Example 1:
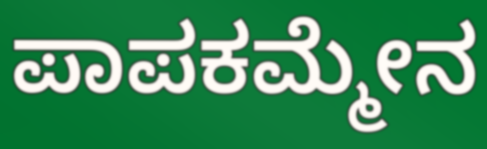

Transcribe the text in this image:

ಪಾಪಕಮ್ಮೇನ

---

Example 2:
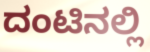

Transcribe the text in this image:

ದಂಟಿನಲ್ಲಿ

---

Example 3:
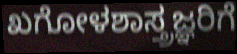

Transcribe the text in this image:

ಖಗೋಳಶಾಸ್ತ್ರಜ್ಞರಿಗೆ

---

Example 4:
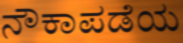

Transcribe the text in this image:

ನೌಕಾಪಡೆಯ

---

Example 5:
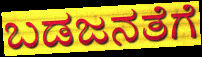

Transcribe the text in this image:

ಬಡಜನತೆಗೆ